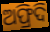
ଅଫ୍ରିଦି